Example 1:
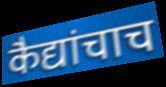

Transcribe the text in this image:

कैद्यांचाच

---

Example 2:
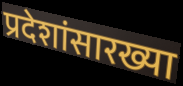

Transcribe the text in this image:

प्रदेशांसारख्या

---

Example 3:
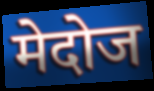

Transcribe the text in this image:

मेदोज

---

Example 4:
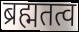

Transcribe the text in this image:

ब्रह्मतत्व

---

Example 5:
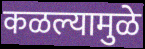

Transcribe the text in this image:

कळल्यामुळे